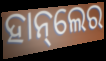
ହାନ୍‌ଲେର